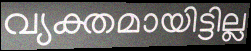
വ്യക്തമായിട്ടില്ല